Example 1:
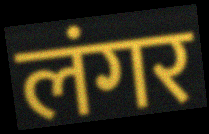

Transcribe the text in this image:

लंगर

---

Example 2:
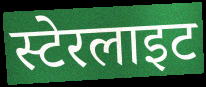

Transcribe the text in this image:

स्टेरलाइट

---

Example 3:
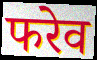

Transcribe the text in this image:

फरेव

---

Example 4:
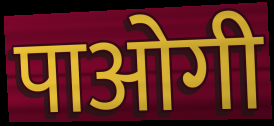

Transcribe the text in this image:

पाओगी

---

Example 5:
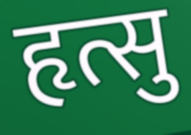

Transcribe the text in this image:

हृत्सु